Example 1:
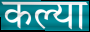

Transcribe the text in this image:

कल्या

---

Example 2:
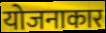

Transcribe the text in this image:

योजनाकार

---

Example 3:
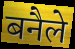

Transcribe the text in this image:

बनैले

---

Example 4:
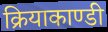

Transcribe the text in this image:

क्रियाकाण्डी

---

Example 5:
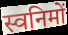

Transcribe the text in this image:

स्वनिमों